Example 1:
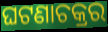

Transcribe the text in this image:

ଘଟଣାଚକ୍ରର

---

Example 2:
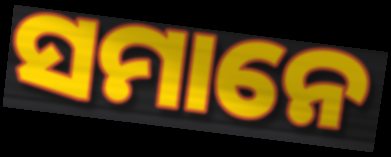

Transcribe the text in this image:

ସମାନେ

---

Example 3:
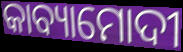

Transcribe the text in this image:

କାବ୍ୟାମୋଦୀ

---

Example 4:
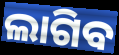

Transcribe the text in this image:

ଲାଗିବ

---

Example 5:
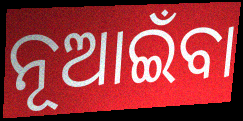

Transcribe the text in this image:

ନୂଆଇଁବା